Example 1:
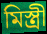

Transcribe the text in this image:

মিস্ত্ৰী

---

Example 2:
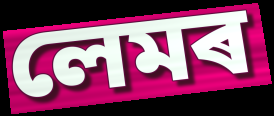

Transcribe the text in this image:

লেমৰ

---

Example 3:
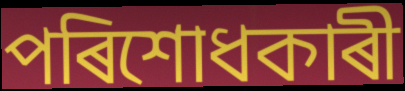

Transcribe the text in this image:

পৰিশোধকাৰী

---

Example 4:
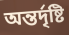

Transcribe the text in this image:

অন্তৰ্দৃষ্টি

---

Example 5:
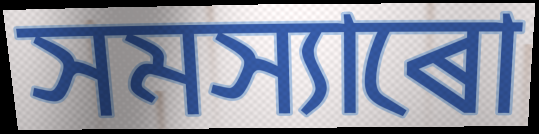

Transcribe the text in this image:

সমস্যাৰো